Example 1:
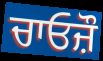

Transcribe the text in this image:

ਚਾਓਜ਼ੌ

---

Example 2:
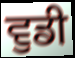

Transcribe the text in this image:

ਵੁਡੀ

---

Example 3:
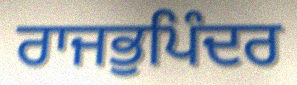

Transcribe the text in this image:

ਰਾਜਭੁਪਿੰਦਰ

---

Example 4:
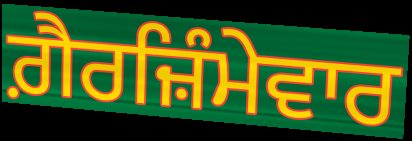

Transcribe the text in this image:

ਗ਼ੈਰਜ਼ਿੰਮੇਵਾਰ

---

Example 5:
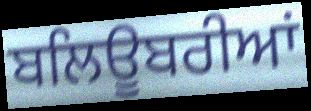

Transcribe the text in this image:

ਬਲਿਊਬਰੀਆਂ